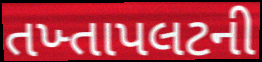
તખ્તાપલટની